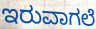
ಇರುವಾಗಲೆ